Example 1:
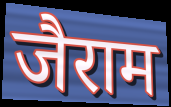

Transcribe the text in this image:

जैराम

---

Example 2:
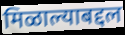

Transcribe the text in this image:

मिळाल्याबद्दल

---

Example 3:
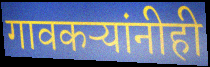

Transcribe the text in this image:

गावकऱ्यांनीही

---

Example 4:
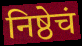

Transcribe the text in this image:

निष्ठेचं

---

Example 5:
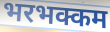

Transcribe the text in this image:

भरभक्कम